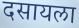
दसायला